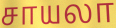
சாயலா